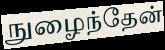
நுழைந்தேன்